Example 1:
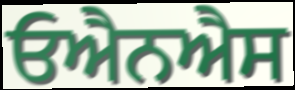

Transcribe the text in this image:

ਓਐਨਐਸ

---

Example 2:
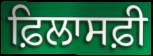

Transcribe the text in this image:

ਫ਼ਿਲਾਸਫ਼ੀ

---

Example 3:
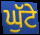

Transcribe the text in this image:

ਘੁੱਟੇ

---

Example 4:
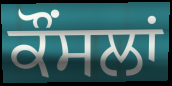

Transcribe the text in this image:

ਕੌਂਸਲਾਂ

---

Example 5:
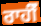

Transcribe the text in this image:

ਰਾਹੀਂੰ